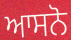
ਆਸਨੋ